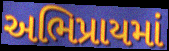
અભિપ્રાયમાં